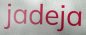
jadeja